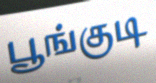
பூங்குடி